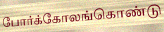
போர்க்கோலங்கொண்டு